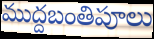
ముద్దబంతిపూలు